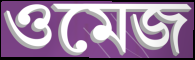
ওমেজ